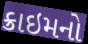
ક્રાઇમનો